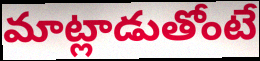
మాట్లాడుతోంటే